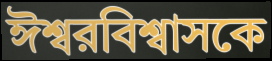
ঈশ্বরবিশ্বাসকে